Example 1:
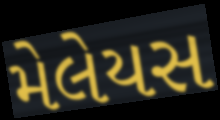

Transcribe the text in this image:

મેલેયસ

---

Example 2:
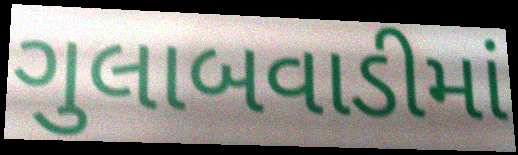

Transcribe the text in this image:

ગુલાબવાડીમાં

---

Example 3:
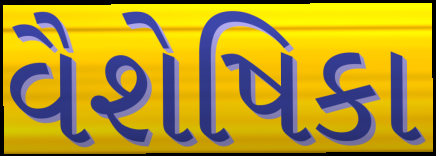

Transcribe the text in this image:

વૈશેષિકા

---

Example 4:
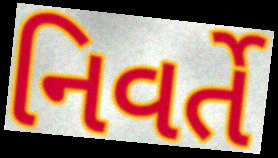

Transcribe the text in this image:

નિવર્તે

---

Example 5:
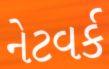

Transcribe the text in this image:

નેટવર્ક